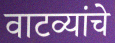
वाटव्यांचे